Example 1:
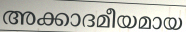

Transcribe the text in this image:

അക്കാദമീയമായ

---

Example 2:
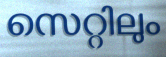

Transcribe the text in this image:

സെറ്റിലും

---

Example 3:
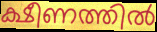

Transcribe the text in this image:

ക്ഷീണത്തിൽ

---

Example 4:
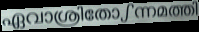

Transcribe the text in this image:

ഏവാശ്രിതോഽന്നമത്തി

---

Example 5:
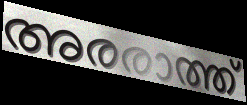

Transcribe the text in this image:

അരരാത്ത്